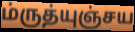
ம்ருத்யுஞ்சய